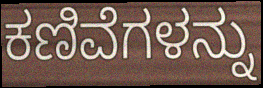
ಕಣಿವೆಗಳನ್ನು